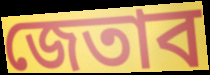
জেতাব